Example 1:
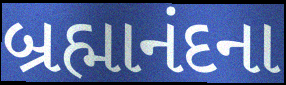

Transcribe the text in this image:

બ્રહ્માનંદના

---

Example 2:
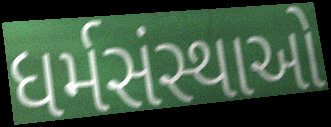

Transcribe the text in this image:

ધર્મસંસ્થાઓ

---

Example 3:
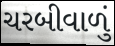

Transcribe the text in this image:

ચરબીવાળું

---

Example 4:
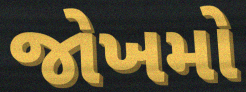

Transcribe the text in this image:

જોખમો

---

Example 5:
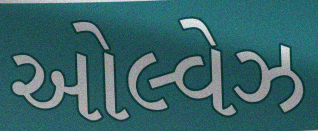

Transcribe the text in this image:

ઓલ્વેઝ